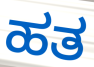
ಹತ